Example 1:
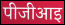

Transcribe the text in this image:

पीजीआइ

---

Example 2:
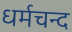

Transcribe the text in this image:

धर्मचन्द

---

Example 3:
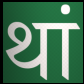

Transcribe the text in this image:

थां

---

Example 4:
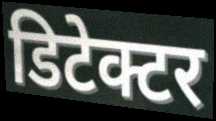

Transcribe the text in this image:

डिटेक्टर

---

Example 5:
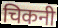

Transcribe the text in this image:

चिकनी